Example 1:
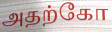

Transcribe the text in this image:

அதற்கோ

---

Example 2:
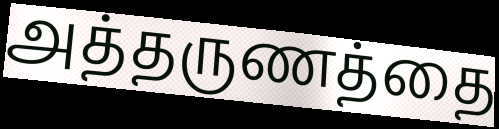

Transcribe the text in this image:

அத்தருணத்தை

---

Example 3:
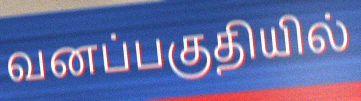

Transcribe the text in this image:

வனப்பகுதியில்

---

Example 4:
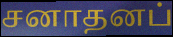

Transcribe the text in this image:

சனாதனப்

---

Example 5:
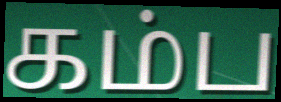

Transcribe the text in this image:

கம்ப